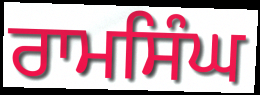
ਰਾਮਸਿੰਘ